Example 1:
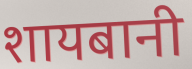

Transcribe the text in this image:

शायबानी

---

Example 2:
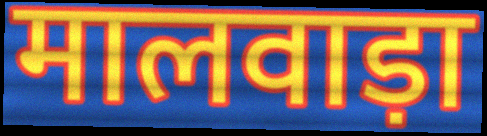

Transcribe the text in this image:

मालवाड़ा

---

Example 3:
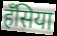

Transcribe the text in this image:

हँसिया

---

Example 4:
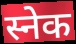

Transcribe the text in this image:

स्नेक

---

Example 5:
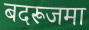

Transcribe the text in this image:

बदरूजमा